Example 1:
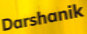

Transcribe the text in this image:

Darshanik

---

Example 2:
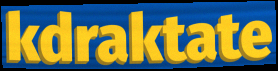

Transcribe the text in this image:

kdraktate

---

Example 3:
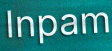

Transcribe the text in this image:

Inpam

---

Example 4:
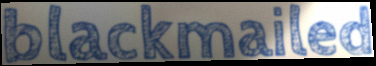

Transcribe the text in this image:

blackmailed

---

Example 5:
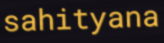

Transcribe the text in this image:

sahityana